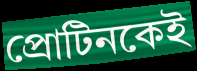
প্রোটিনকেই